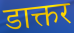
डाक्तर